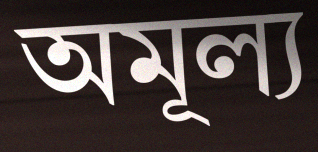
অমূল্য